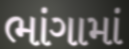
ભાંગામાં